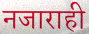
नजाराही